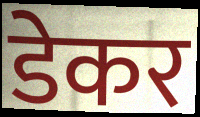
डेकर